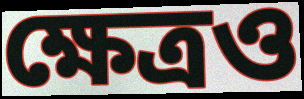
ক্ষেত্রও